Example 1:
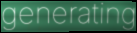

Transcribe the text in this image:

generating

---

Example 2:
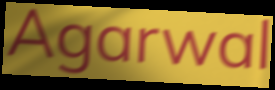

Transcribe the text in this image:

Agarwal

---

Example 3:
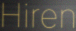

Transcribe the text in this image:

Hiren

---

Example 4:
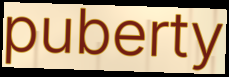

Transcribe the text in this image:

puberty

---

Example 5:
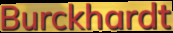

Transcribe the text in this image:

Burckhardt